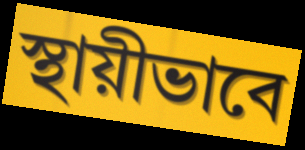
স্থায়ীভাবে